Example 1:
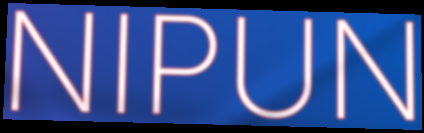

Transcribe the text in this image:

NIPUN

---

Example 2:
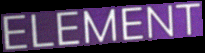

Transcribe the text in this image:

ELEMENT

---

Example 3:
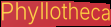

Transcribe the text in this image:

Phyllotheca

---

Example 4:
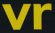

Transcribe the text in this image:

vr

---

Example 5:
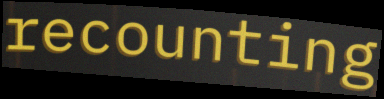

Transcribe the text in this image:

recounting